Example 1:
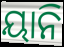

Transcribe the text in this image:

ୟାନି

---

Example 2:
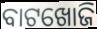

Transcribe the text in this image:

ବାଟଖୋଜି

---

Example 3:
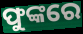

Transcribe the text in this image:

ଫୁଙ୍କରେ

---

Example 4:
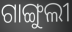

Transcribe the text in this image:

ଗାଙ୍ଗୁଲୀ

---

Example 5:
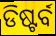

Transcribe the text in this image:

ଡିଷ୍ଟର୍ବ